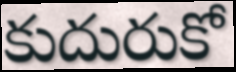
కుదురుకో